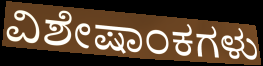
ವಿಶೇಷಾಂಕಗಳು